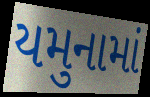
યમુનામાં